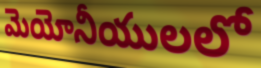
మెయోనీయులలో